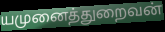
யமுனைத்துறைவன்